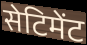
सेटिमेंट